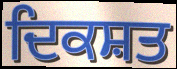
ਦਿਕਸ਼ਤ